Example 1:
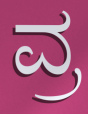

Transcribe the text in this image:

ವ್ರ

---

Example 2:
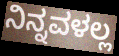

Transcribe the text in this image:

ನಿನ್ನವಳಲ್ಲ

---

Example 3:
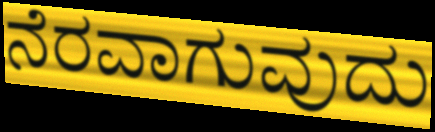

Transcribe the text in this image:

ನೆರವಾಗುವುದು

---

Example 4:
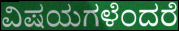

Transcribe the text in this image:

ವಿಷಯಗಳೆಂದರೆ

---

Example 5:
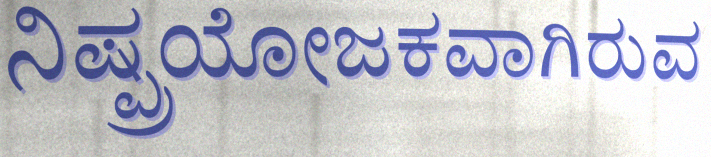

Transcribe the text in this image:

ನಿಷ್ಪ್ರಯೋಜಕವಾಗಿರುವ